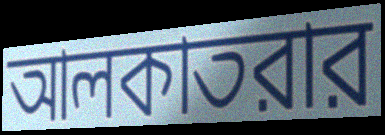
আলকাতরার